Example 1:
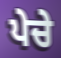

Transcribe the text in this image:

ਪੇਚੇ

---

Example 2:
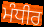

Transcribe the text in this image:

ਮੰਧੀਰ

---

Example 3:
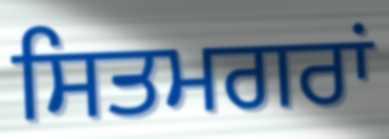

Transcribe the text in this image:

ਸਿਤਮਗਰਾਂ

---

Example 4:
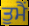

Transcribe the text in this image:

ਤੁਮੈਂ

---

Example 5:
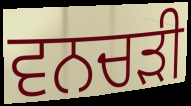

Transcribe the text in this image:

ਵਨਚੜੀ